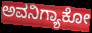
ಅವನಿಗ್ಯಾಕೋ